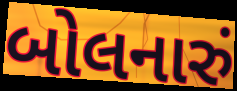
બોલનારું